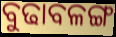
ବୁଢାବଳଙ୍ଗ